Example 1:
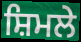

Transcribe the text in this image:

ਸ਼ਿਮਲੇ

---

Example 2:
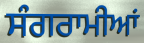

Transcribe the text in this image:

ਸੰਗਰਾਮੀਆਂ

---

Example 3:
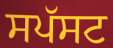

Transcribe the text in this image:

ਸਪੱਸਟ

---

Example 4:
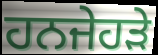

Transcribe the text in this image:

ਹਨਜੇਹੜੇ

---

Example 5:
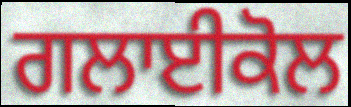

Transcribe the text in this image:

ਗਲਾਈਕੋਲ